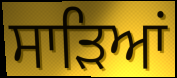
ਸਾੜਿਆਂ